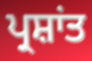
ਪ੍ਰਸ਼ਾਂਤ